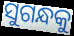
ସୁଗନ୍ଧକୁ